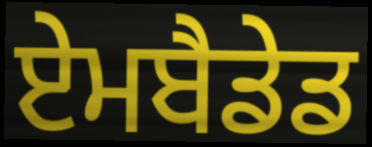
ਏਮਬੈਡੇਡ